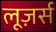
लूज़र्स